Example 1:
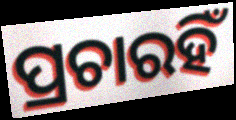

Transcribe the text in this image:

ପ୍ରଚାରହିଁ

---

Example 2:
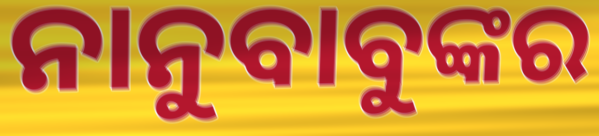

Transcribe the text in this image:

ନାନୁବାବୁଙ୍କର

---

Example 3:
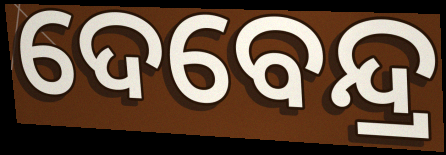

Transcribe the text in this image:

ଦେବେନ୍ଦ୍ର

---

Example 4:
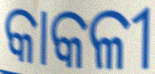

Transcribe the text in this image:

କାକଳୀ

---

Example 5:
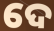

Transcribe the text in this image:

ଦେ